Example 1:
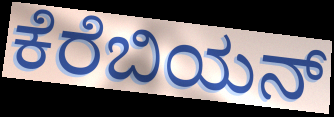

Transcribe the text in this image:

ಕೆರೆಬಿಯನ್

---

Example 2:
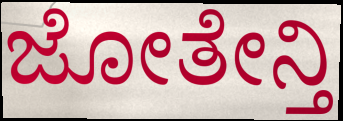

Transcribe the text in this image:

ಜೋತೇನ್ತಿ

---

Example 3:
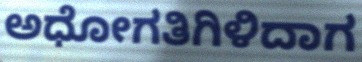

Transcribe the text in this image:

ಅಧೋಗತಿಗಿಳಿದಾಗ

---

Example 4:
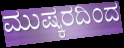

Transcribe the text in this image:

ಮುಷ್ಕರದಿಂದ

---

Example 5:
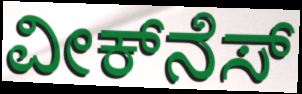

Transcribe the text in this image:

ವೀಕ್‌ನೆಸ್